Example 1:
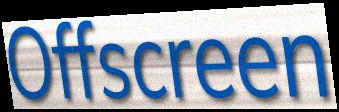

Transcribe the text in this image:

Offscreen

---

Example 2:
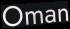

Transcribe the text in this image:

Oman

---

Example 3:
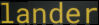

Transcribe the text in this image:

lander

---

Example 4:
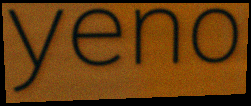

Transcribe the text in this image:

yeno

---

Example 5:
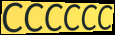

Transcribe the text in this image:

CCCCCC